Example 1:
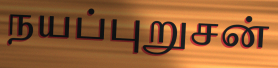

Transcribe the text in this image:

நயப்புறுசன்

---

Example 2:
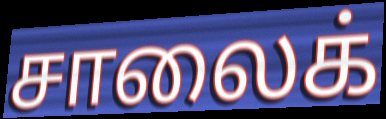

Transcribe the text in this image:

சாலைக்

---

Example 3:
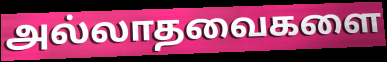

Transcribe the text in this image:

அல்லாதவைகளை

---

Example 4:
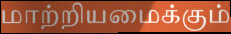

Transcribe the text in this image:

மாற்றியமைக்கும்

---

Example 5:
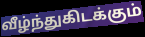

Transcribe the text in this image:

வீழ்ந்துகிடக்கும்